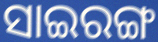
ସାଇରଙ୍ଗ